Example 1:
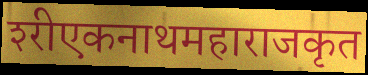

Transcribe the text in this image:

श्रीएकनाथमहाराजकृत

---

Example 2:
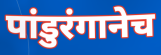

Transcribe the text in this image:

पांडुरंगानेच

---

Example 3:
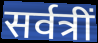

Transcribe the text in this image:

सर्वत्रीं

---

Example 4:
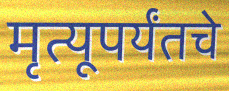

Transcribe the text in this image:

मृत्यूपर्यंतचे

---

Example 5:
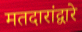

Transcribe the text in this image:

मतदारांद्वारे